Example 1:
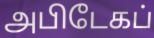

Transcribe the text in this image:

அபிடேகப்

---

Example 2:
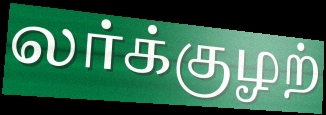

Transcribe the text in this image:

லர்க்குழற்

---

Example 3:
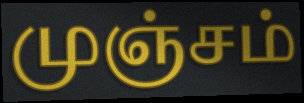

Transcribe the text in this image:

முஞ்சம்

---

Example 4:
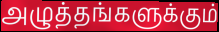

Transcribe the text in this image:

அழுத்தங்களுக்கும்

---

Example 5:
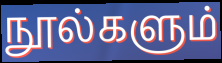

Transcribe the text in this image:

நூல்களும்